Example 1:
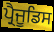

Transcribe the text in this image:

ਪ੍ਰੈਜੂਡਿਸ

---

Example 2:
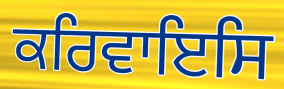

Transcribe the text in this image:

ਕਰਿਵਾਇਸਿ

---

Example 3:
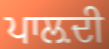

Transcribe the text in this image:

ਪਾਲ਼ਦੀ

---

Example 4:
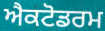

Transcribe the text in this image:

ਐਕਟੋਡਰਮ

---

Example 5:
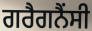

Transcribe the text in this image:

ਗਰੈਗਨੈਂਸੀ